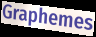
Graphemes